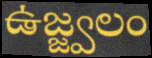
ఉజ్జ్వలం